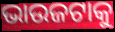
ଭାଉଜଟାକୁ